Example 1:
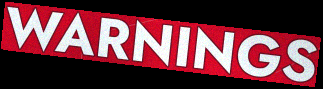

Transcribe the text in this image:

WARNINGS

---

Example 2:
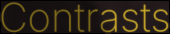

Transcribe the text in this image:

Contrasts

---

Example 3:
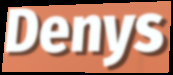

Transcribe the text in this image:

Denys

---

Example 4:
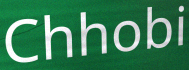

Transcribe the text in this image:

Chhobi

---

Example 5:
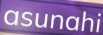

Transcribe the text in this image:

asunahi